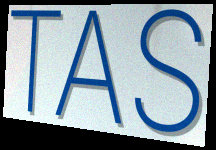
TAS